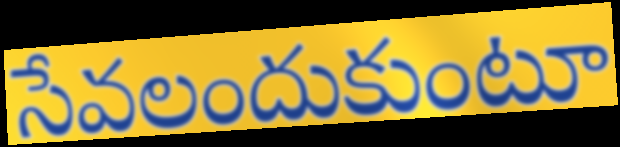
సేవలందుకుంటూ